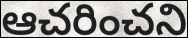
ఆచరించని